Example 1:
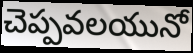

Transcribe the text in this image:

చెప్పవలయునో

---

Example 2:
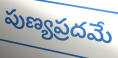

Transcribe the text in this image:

పుణ్యప్రదమే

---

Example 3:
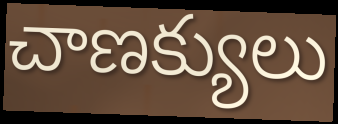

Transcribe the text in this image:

చాణక్యులు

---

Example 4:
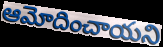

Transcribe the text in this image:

ఆమోదించాయని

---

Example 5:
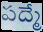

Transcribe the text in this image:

పద్మే